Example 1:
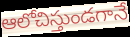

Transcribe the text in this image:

ఆలోచిస్తుండగానే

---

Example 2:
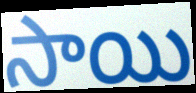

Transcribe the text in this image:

సాయి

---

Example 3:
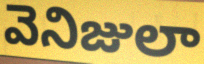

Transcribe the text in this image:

వెనిజులా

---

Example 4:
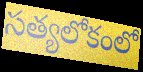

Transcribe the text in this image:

సత్యలోకంలో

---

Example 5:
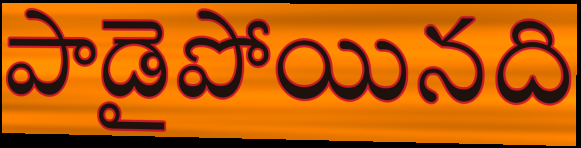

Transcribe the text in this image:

పాడైపోయినది